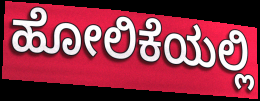
ಹೋಲಿಕೆಯಲ್ಲಿ